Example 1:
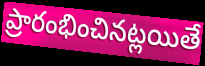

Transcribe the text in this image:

ప్రారంభించినట్లయితే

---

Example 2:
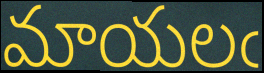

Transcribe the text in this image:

మాయలఁ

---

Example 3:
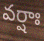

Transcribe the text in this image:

వర్షాః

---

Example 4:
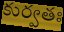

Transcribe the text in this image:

కుర్వతః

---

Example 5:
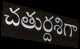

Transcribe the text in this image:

చతుర్దశిగా